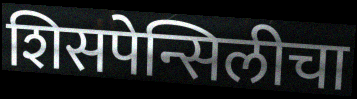
शिसपेन्सिलीचा